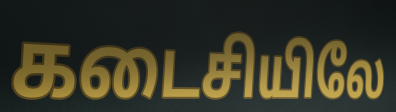
கடைசியிலே